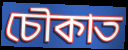
চৌকাত